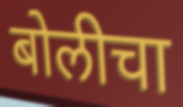
बोलीचा